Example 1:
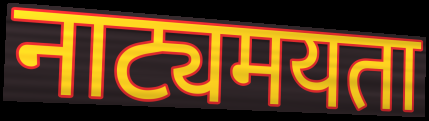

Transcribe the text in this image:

नाट्यमयता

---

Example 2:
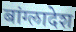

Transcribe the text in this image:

बांग्लादेश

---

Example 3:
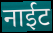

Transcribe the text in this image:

नाईट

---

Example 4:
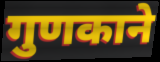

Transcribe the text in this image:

गुणकाने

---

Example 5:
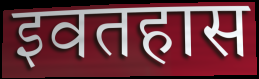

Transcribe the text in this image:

इवतहास